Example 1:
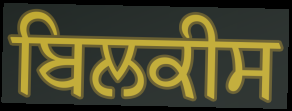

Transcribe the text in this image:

ਬਿਲਕੀਸ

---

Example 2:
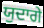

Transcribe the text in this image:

ਯੁਦਾਗੇ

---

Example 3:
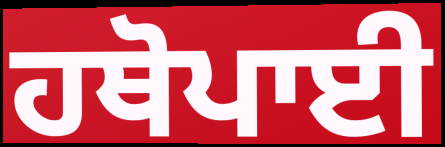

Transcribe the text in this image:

ਹਥੋਪਾਈ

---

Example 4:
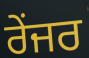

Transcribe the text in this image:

ਰੇਂਜਰ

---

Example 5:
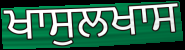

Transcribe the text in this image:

ਖਾਸੁਲਖਾਸ